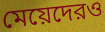
মেয়েদেরও